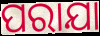
ପରାଯା